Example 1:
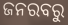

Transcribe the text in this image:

ଜନରବରୁ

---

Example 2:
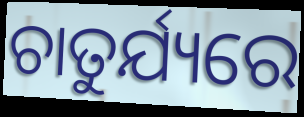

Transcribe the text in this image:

ଚାତୁର୍ଯ୍ୟରେ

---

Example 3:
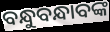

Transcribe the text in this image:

ବନ୍ଧୁବନ୍ଧାବଙ୍କ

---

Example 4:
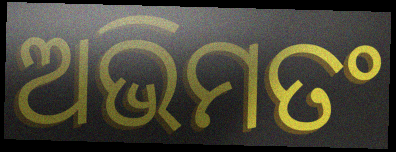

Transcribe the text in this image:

ଅଭିମତଂ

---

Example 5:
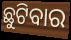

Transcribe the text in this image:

ଛୁଟିବାର